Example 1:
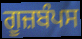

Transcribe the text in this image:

ਗੂਜ਼ਬੰਪਸ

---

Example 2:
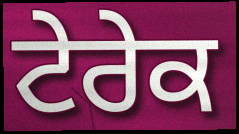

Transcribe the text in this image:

ਟੇਰੇਕ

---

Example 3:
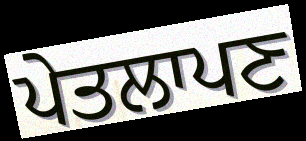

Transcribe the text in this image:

ਪੇਤਲਾਪਣ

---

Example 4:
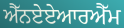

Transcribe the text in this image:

ਐੱਨਏਏਆਰਐੱਮ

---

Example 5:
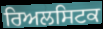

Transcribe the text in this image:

ਰਿਅਲਸਿਟਕ